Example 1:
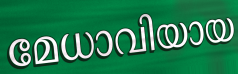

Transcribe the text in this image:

മേധാവിയായ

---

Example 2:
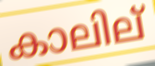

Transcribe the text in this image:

കാലില്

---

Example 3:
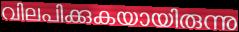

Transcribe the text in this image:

വിലപിക്കുകയായിരുന്നു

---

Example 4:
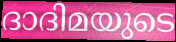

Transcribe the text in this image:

ദാദിമയുടെ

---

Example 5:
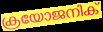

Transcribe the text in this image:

ക്രയോജനിക്